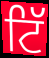
ਟਿੱ